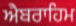
ਐਬਰਾਹਿਮ